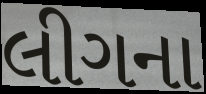
લીગના